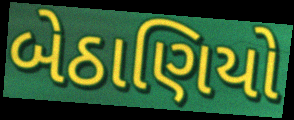
બેઠાણિયો